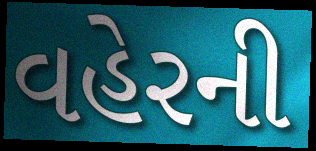
વહેરની